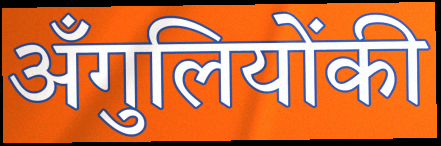
अँगुलियोंकी